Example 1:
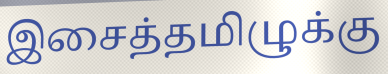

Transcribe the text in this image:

இசைத்தமிழுக்கு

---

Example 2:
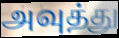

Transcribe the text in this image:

அவுத்து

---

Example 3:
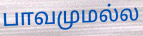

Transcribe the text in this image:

பாவமுமல்ல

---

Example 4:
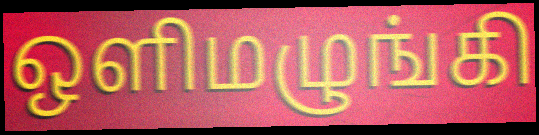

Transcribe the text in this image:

ஒளிமழுங்கி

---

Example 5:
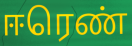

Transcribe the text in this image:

ஈரெண்